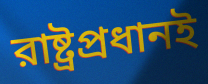
রাষ্ট্রপ্রধানই